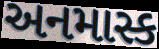
અનમાસ્ક